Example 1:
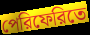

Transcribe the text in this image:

পেরিফেরিতে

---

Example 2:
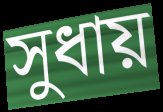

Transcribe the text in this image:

সুধায়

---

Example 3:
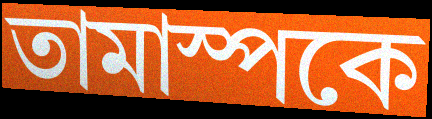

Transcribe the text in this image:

তামাস্পকে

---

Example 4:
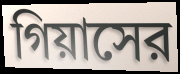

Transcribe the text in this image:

গিয়াসের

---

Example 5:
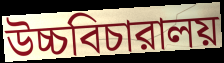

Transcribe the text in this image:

উচ্চবিচারালয়